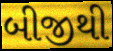
બીજીથી